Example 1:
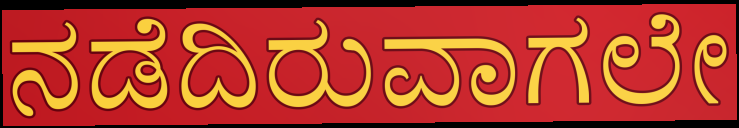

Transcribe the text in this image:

ನಡೆದಿರುವಾಗಲೇ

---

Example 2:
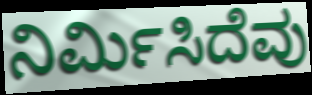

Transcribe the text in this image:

ನಿರ್ಮಿಸಿದೆವು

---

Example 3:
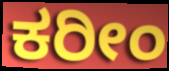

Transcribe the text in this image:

ಕರೀಂ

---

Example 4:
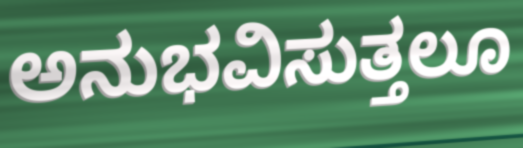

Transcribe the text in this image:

ಅನುಭವಿಸುತ್ತಲೂ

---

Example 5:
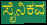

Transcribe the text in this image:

ಸೈನಿಕವ